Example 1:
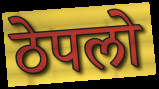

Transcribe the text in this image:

ठेपलो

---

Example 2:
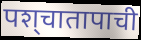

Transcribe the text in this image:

पश्चातापाची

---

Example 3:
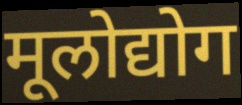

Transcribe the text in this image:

मूलोद्योग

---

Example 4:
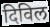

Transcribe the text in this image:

दिविल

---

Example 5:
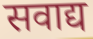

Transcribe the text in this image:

सवाद्य